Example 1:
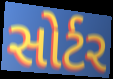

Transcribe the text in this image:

સોર્ટર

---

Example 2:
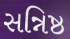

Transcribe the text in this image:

સન્નિષ્ઠ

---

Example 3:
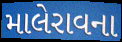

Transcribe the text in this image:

માલેરાવના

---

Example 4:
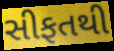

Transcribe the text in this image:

સીફતથી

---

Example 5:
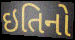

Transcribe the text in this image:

ઇતિનો